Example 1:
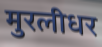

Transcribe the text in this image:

मुरलीधर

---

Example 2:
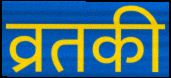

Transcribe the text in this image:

व्रतकी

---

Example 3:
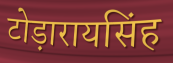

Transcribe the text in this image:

टोड़ारायसिंह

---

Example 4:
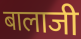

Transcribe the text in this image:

बालाजी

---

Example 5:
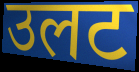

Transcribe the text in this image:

उलट